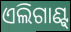
ଏଲିଗାଣ୍ଟ୍